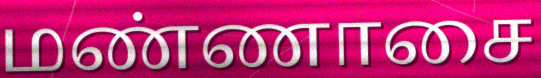
மண்ணாசை